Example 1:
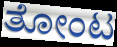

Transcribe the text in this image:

ತೋಂಟ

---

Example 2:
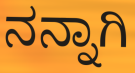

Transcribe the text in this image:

ನನ್ನಾಗಿ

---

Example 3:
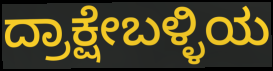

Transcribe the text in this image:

ದ್ರಾಕ್ಷೇಬಳ್ಳಿಯ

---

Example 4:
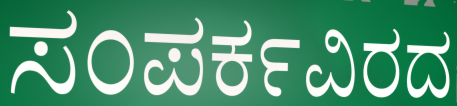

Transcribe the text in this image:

ಸಂಪರ್ಕವಿರದ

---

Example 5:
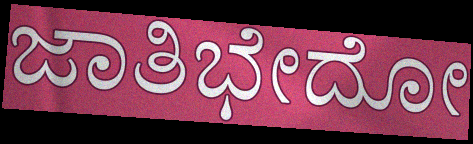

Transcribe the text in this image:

ಜಾತಿಭೇದೋ